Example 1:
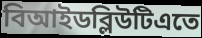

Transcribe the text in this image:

বিআইডব্লিউটিএতে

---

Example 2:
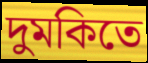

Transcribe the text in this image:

দুমকিতে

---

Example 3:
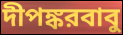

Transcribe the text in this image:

দীপঙ্করবাবু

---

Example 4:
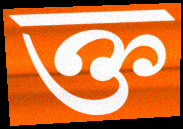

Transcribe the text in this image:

ক্ত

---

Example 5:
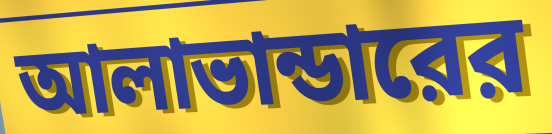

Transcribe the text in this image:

আলাভান্ডারের